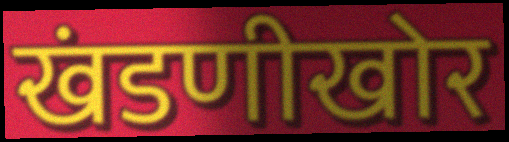
खंडणीखोर